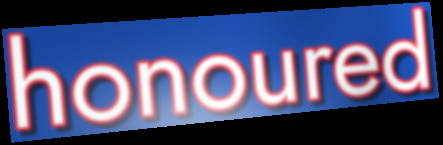
honoured